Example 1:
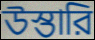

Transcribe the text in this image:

উস্তারি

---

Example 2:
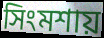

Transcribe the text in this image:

সিংমশায়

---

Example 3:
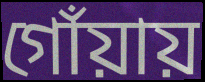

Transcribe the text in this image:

গোঁয়ায়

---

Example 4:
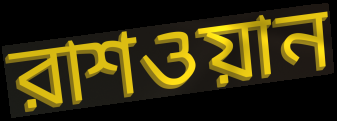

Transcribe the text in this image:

রাশওয়ান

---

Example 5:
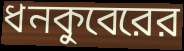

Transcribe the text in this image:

ধনকুবেরের